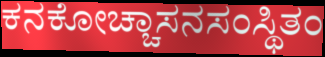
ಕನಕೋಚ್ಚಾಸನಸಂಸ್ಥಿತಂ